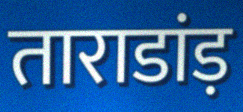
ताराडांड़